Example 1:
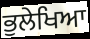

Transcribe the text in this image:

ਭੁਲੇਖਿਆ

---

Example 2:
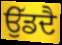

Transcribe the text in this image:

ਉੱਡਦੈ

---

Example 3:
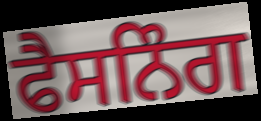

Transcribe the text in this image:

ਫੈਸਨਿੰਗ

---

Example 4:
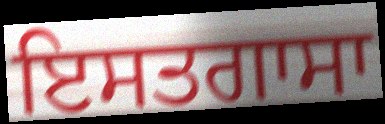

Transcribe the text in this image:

ਇਸਤਗਾਸਾ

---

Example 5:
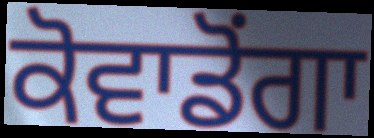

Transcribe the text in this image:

ਕੋਵਾਡੋਂਗਾ